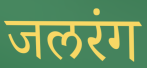
जलरंग